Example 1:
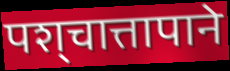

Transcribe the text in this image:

पश्चात्तापाने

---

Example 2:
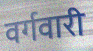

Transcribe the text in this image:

वर्गवारी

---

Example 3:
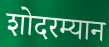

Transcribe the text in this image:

शोदरम्यान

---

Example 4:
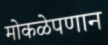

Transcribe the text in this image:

मोकळेपणान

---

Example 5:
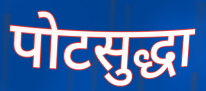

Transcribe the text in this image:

पोटसुद्धा